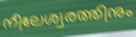
നീലേശ്വരത്തിനും